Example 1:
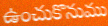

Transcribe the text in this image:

ఉంచుకొనుము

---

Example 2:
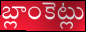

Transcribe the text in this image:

బ్లాంకెట్లు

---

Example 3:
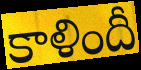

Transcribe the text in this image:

కాళిందీ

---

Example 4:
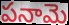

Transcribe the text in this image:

పనామె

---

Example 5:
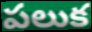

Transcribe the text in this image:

పలుక